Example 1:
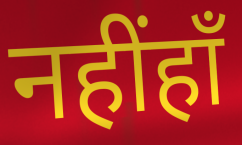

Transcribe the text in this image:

नहींहाँ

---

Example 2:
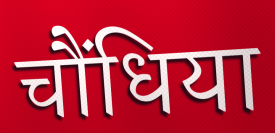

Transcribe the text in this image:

चौंधिया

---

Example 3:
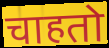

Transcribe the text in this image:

चाहतो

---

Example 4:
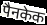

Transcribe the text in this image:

पैनकेक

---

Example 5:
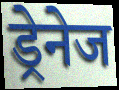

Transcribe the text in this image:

ड्रेनेज